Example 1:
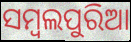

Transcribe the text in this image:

ସମ୍ବଲପୁରିଆ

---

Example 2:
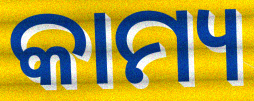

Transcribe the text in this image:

କାମ୍ୟ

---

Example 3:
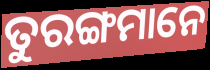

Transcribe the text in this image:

ତୁରଙ୍ଗମାନେ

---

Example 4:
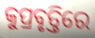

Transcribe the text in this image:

କୁପ୍ରବୃତ୍ତିରେ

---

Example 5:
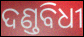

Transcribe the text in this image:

ଦଣ୍ଡବିଧୀ